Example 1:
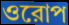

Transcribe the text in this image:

ওরোপ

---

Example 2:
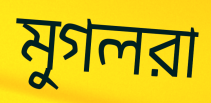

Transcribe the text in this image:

মুগলরা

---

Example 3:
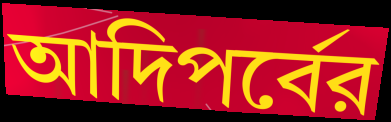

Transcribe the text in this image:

আদিপর্বের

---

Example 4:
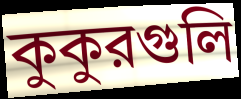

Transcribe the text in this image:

কুকুরগুলি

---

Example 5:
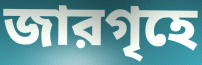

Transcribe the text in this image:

জারগৃহে